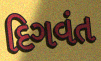
દિગવંત